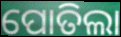
ପୋତିଲା